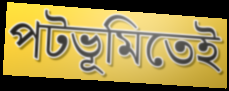
পটভূমিতেই